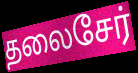
தலைசேர்